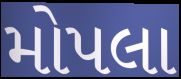
મોપલા